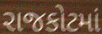
રાજકોટમાં